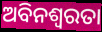
ଅବିନଶ୍ୱରତା